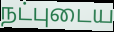
நட்புடைய